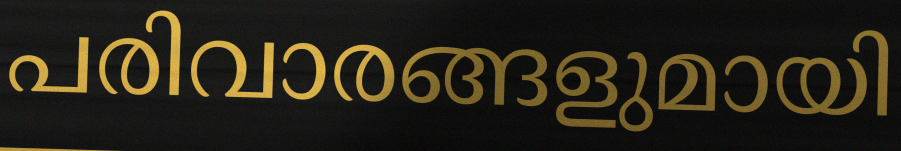
പരിവാരങ്ങളുമായി